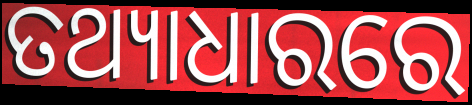
ତଥ୍ୟାଧାରରେ